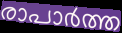
രാപാർത്ത